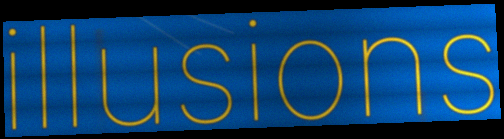
illusions